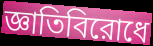
জ্ঞাতিবিরোধে